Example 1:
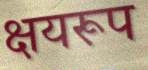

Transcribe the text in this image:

क्षयरूप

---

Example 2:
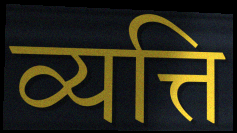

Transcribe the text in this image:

व्यत्ति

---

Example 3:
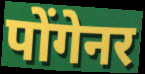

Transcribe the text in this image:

पोंगेनर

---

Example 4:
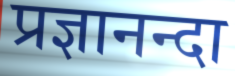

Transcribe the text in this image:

प्रज्ञानन्दा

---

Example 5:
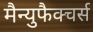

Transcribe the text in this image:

मैन्युफैक्चर्स